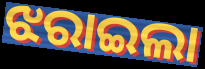
ଝରାଇଲା